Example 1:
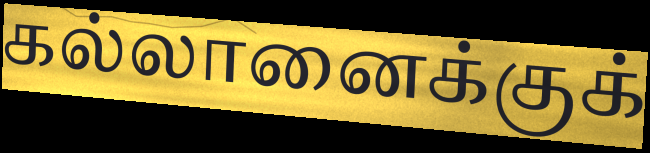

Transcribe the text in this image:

கல்லானைக்குக்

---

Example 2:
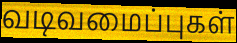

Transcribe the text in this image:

வடிவமைப்புகள்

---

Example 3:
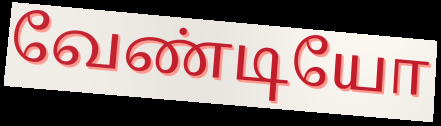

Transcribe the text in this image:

வேண்டியோ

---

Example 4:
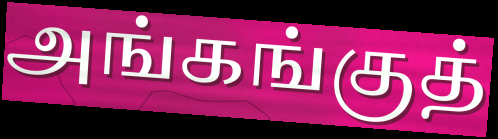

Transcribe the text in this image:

அங்கங்குத்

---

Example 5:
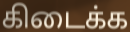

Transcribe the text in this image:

கிடைக்க